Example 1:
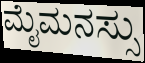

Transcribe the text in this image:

ಮೈಮನಸ್ಸು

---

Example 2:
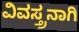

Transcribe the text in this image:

ವಿವಸ್ತ್ರನಾಗಿ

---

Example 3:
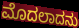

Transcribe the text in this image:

ಮೊದಲಾದನು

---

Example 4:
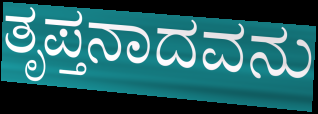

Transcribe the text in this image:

ತೃಪ್ತನಾದವನು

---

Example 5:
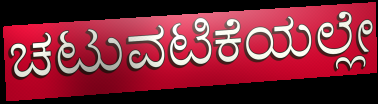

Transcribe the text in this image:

ಚಟುವಟಿಕೆಯಲ್ಲೇ